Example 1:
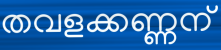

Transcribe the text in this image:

തവളക്കണ്ണന്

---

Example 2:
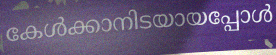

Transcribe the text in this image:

കേൾക്കാനിടയായപ്പോൾ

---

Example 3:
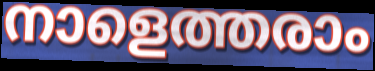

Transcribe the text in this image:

നാളെത്തരാം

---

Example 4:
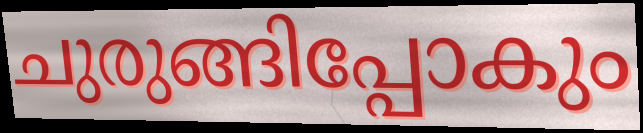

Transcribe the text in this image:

ചുരുങ്ങിപ്പോകും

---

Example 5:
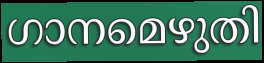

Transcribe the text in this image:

ഗാനമെഴുതി